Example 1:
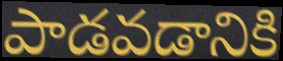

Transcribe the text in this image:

పాడవడానికి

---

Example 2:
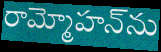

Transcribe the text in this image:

రామ్మోహన్‌ను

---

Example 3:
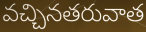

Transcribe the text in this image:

వచ్చినతరువాత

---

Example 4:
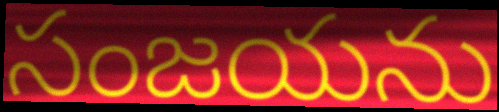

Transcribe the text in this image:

సంజయను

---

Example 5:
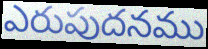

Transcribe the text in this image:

ఎరుపుదనము